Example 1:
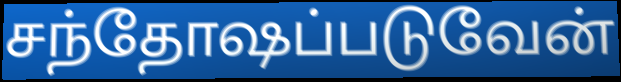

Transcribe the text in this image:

சந்தோஷப்படுவேன்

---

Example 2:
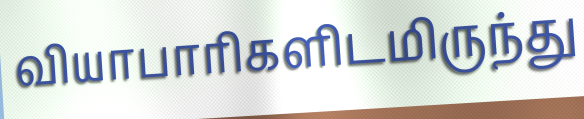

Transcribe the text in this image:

வியாபாரிகளிடமிருந்து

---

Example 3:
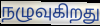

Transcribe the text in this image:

நழுவுகிறது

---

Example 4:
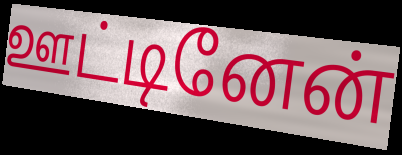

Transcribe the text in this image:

ஊட்டினேன்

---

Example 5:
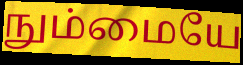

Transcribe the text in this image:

நும்மையே